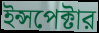
ইন্সপেক্টার